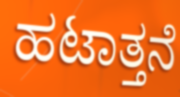
ಹಟಾತ್ತನೆ